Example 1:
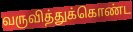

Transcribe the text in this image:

வருவித்துக்கொண்ட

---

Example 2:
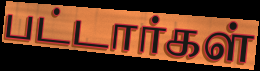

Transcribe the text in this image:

பட்டார்கள்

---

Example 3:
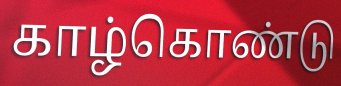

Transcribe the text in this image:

காழ்கொண்டு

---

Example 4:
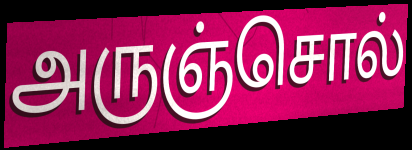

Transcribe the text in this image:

அருஞ்சொல்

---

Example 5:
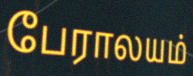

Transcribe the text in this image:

பேராலயம்